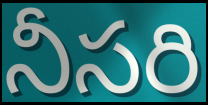
నీసరి